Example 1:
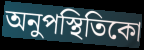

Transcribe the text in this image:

অনুপস্থিতিকো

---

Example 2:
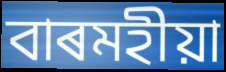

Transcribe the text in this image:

বাৰমহীয়া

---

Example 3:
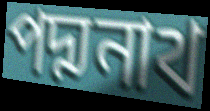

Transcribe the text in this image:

পদ্মনাথ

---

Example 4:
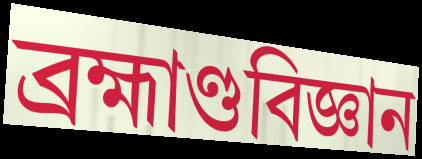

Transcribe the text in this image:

ব্ৰহ্মাণ্ডবিজ্ঞান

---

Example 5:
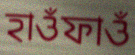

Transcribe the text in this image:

হাওঁফাওঁ